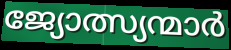
ജ്യോത്സ്യന്മാർ